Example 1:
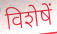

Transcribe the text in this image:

विशेषें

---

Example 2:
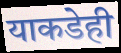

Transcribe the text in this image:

याकडेही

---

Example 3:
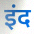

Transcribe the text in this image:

इंद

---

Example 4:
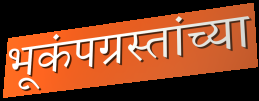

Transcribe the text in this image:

भूकंपग्रस्तांच्या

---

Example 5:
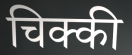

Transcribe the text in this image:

चिक्की